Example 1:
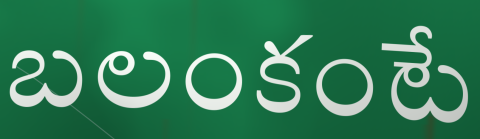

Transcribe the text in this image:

బలంకంటే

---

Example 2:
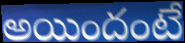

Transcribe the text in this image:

అయిందంటే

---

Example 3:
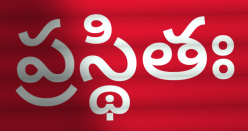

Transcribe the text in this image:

ప్రస్థితః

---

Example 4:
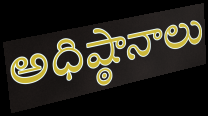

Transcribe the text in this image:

అధిష్ఠానాలు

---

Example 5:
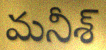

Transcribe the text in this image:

మనీశ్